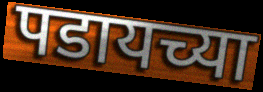
पडायच्या